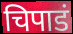
चिपाडं